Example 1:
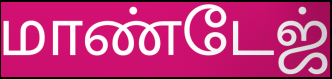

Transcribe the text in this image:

மாண்டேஜ்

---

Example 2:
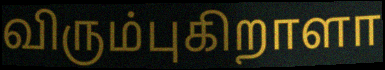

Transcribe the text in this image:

விரும்புகிறாளா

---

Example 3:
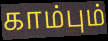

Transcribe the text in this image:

காம்பும்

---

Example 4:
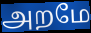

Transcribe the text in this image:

அறமே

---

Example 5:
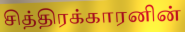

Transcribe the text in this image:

சித்திரக்காரனின்